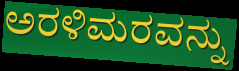
ಅರಳಿಮರವನ್ನು